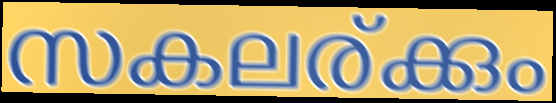
സകലര്ക്കും